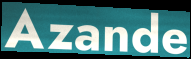
Azande